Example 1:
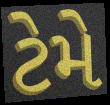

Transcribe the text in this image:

ટેમે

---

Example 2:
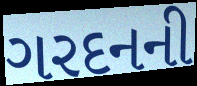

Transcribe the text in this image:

ગરદનની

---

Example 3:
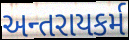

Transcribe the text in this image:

અન્તરાયકર્મ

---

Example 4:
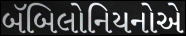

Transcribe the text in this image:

બૅબિલોનિયનોએ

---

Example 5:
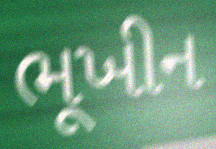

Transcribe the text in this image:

ભૂખીન